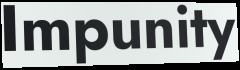
Impunity